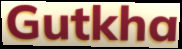
Gutkha